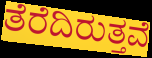
ತೆರೆದಿರುತ್ತವೆ